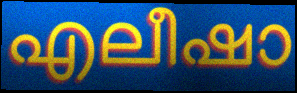
എലീഷാ